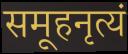
समूहनृत्यं